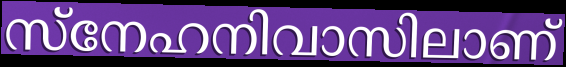
സ്നേഹനിവാസിലാണ്